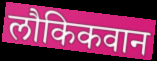
लौकिकवान